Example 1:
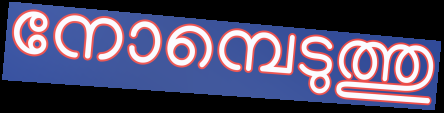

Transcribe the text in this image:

നോമ്പെടുത്തു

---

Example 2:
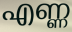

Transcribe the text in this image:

എണ്ണ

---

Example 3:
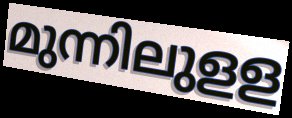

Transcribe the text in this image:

മുന്നിലുളള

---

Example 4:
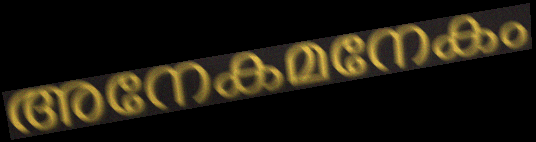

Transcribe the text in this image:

അനേകമനേകം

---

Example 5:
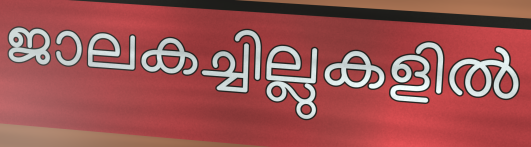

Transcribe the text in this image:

ജാലകച്ചില്ലുകളിൽ